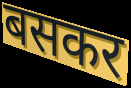
बसकर